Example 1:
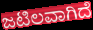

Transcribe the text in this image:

ಜಟಿಲವಾಗಿದೆ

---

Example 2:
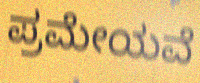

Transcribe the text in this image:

ಪ್ರಮೇಯವೆ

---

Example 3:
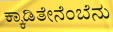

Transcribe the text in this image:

ಕ್ಕಾಡಿತೇನೆಂಬೆನು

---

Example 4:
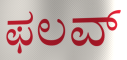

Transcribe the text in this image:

ಫಲವ್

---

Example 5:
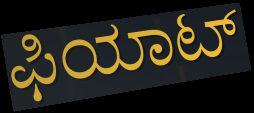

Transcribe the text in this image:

ಫಿಯಾಟ್